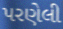
પરણેલી